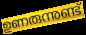
ഉണരുന്നുണ്ട്